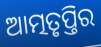
ଆତ୍ମତୃପ୍ତିର